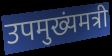
उपमुख्यंमत्री